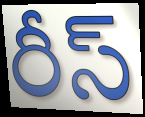
రీస్